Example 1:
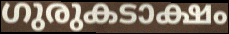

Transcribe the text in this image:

ഗുരുകടാക്ഷം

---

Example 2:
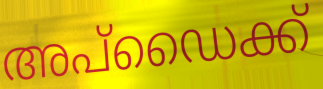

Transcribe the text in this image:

അപ്ഡൈക്ക്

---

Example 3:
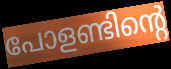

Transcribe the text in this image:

പോളണ്ടിന്റെ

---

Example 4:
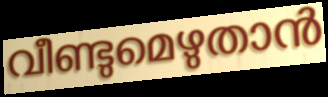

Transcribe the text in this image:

വീണ്ടുമെഴുതാൻ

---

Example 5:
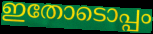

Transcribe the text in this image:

ഇതോടൊപ്പം